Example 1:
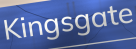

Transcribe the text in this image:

Kingsgate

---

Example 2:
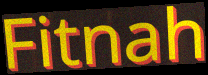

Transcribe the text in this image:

Fitnah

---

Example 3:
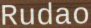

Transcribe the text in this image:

Rudao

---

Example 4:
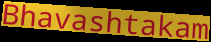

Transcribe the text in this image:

Bhavashtakam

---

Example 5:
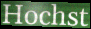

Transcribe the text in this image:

Hochst